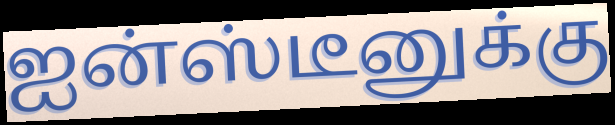
ஐன்ஸ்டீனுக்கு